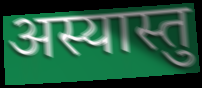
अस्यास्तु